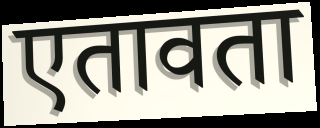
एतावता